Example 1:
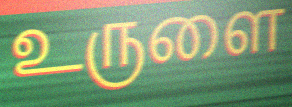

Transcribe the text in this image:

உருளை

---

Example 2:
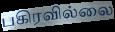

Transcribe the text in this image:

பகிரவில்லை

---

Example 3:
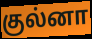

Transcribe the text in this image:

குல்னா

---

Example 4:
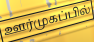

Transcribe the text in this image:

ஊர்முகப்பில்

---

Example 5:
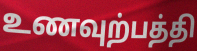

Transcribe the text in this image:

உணவுற்பத்தி